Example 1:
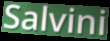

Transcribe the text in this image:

Salvini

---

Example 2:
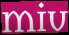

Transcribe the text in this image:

miu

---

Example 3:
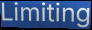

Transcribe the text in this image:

Limiting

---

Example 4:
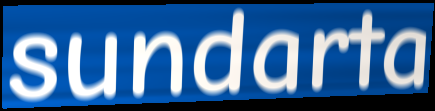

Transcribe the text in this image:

sundarta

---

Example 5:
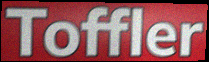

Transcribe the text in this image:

Toffler